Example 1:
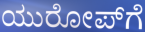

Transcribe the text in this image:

ಯುರೋಪ್‌ಗೆ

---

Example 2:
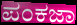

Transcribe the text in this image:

ಪಂಕಜಾ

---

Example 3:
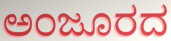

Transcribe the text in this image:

ಅಂಜೂರದ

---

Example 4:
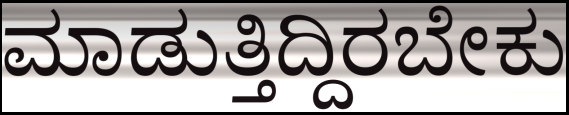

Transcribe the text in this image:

ಮಾಡುತ್ತಿದ್ದಿರಬೇಕು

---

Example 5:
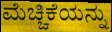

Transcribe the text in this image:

ಮೆಚ್ಚಿಕೆಯನ್ನು